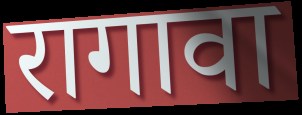
रागावा